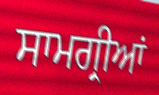
ਸਾਮਗ੍ਰੀਆਂ